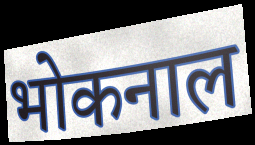
भोकनाल